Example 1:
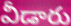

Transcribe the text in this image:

వీడారు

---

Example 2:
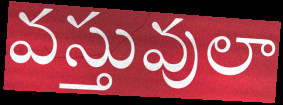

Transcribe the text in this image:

వస్తువులా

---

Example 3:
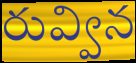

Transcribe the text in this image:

రువ్విన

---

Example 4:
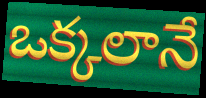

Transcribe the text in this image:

ఒక్కలానే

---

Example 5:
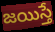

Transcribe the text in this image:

జయిస్తే